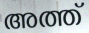
അത്ത്